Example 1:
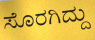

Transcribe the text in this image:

ಸೊರಗಿದ್ದು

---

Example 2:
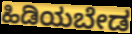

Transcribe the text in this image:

ಹಿಡಿಯಬೇಡ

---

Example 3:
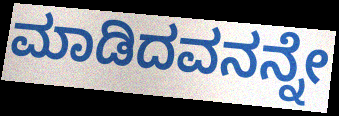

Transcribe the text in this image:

ಮಾಡಿದವನನ್ನೇ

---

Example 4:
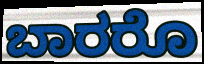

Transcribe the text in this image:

ಬಾರರೊ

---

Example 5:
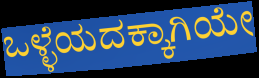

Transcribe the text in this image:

ಒಳ್ಳೆಯದಕ್ಕಾಗಿಯೇ